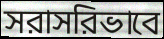
সরাসরিভাবে